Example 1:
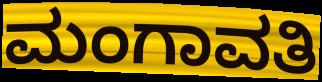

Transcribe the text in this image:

ಮಂಗಾವತಿ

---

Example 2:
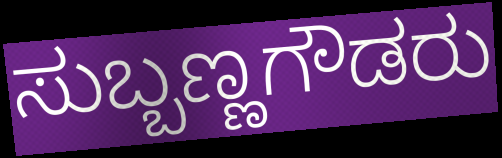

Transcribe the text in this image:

ಸುಬ್ಬಣ್ಣಗೌಡರು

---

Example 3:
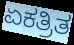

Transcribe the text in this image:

ಏಕತ್ರಿತ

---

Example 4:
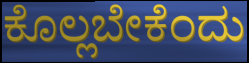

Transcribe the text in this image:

ಕೊಲ್ಲಬೇಕೆಂದು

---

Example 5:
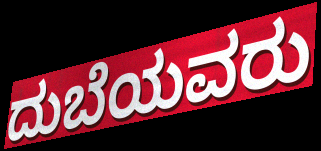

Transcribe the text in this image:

ದುಬೆಯವರು